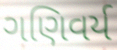
ગણિવર્ય